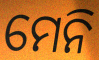
ମେନି